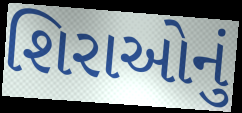
શિરાઓનું